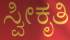
ಸ್ವೀಕೃತಿ